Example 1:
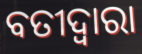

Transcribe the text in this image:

ବତୀଦ୍ୱାରା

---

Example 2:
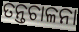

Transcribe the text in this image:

ତନ୍ତଚାଳନା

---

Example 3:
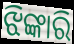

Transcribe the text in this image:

ଝିଙ୍କାରି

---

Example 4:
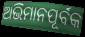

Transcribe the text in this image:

ଅଭିମାନପୂର୍ବକ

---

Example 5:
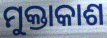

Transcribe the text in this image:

ମୁକ୍ତାକାଶ